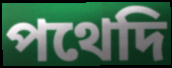
পথেদি